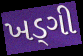
ખડ્ગી